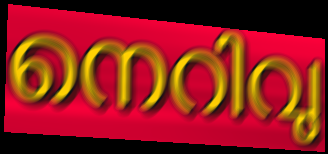
നെറിവു